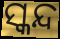
ସ୍କନ୍ଦ